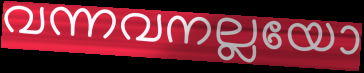
വന്നവനല്ലയോ